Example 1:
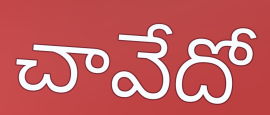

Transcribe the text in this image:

చావేదో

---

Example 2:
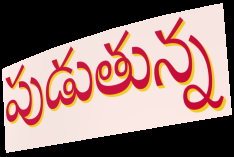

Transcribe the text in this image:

పుడుతున్న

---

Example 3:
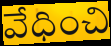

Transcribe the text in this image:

వేధించి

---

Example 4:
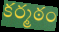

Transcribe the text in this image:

కర్మఠం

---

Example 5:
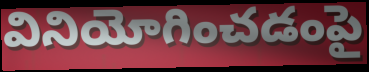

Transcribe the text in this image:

వినియోగించడంపై